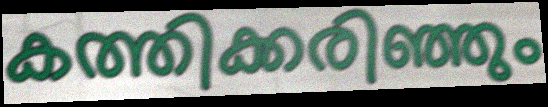
കത്തിക്കരിഞ്ഞും